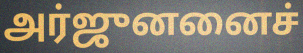
அர்ஜுனனைச்